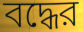
বদ্ধের